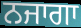
ਨਜਾਗਾ